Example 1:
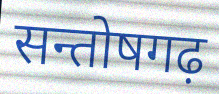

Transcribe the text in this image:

सन्तोषगढ़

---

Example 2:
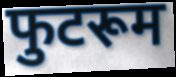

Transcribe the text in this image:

फुटरूम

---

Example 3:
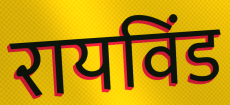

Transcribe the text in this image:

रायविंड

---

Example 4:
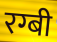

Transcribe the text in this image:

रग्‍बी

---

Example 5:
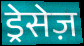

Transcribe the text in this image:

ड्रेसेज़